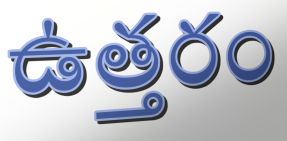
ఉత్తరం